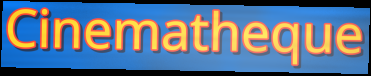
Cinematheque